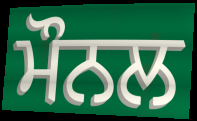
ਮੌਨਲ